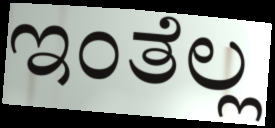
ಇಂತೆಲ್ಲ